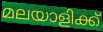
മലയാളിക്ക്